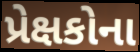
પ્રેક્ષકોના